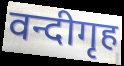
वन्दीगृह